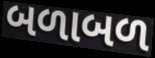
બળાબળ